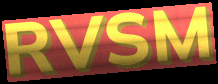
RVSM